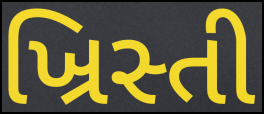
ખ્રિસ્તી